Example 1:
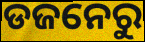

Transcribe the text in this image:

ଡଜନେରୁ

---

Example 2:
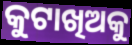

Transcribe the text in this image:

କୁଟାଖିଅକୁ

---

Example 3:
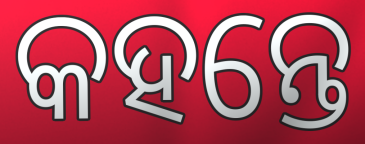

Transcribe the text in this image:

କହନ୍ତେ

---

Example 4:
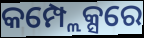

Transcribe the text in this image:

କମ୍ପ୍ଲେକ୍ସରେ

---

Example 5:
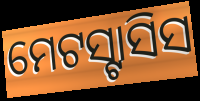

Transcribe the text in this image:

ମେଟସ୍ଟାସିସ